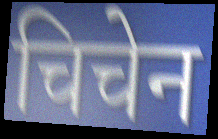
चिचेन